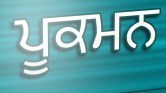
ਪੂਕਮਨ